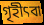
গৃহীৎবা